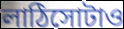
লাঠিসোটাও